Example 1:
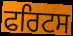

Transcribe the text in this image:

ਫਰਿਟਸ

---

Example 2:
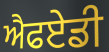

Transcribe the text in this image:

ਐਫਏਡੀ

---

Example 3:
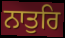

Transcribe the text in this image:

ਨਾਤੁਰਿ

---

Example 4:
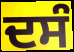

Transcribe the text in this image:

ਦਸੰ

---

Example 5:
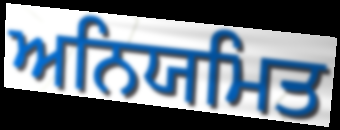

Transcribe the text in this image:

ਅਨਿਯਮਿਤ